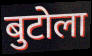
बुटोला